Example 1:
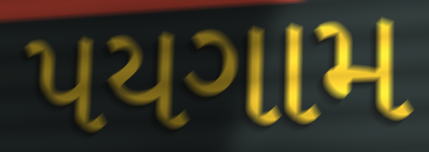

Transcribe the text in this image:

પયગામ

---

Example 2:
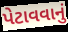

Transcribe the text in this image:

પેટાવવાનું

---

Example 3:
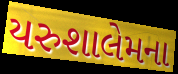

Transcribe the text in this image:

યરુશાલેમના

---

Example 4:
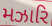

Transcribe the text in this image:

મઝારિ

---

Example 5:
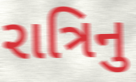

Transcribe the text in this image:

રાત્રિનુ